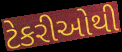
ટેકરીઓથી